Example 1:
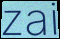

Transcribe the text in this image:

zai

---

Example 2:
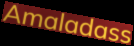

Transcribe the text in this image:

Amaladass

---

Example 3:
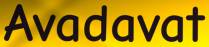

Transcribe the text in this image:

Avadavat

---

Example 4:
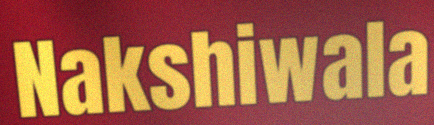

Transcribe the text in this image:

Nakshiwala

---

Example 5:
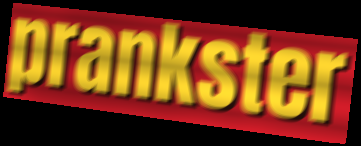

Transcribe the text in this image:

prankster